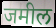
जमील